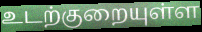
உடற்குறையுள்ள